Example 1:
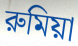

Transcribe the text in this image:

রুমিয়া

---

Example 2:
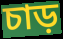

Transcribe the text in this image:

চাড়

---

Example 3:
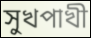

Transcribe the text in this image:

সুখপাখী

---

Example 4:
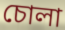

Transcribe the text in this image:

চোলা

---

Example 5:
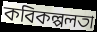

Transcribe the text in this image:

কবিকল্পলতা